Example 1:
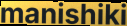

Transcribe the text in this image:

manishiki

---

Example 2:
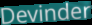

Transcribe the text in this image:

Devinder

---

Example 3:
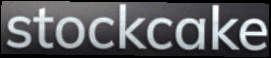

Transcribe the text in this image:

stockcake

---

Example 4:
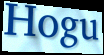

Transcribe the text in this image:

Hogu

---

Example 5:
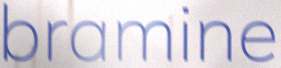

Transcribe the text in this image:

bramine